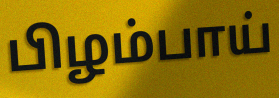
பிழம்பாய்